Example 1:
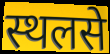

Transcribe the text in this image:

स्थलसे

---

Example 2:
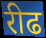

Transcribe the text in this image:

रीढ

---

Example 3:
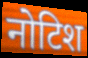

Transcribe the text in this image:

नोटिश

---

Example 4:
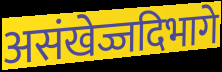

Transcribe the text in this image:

असंखेज्जदिभागे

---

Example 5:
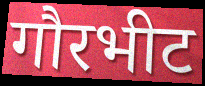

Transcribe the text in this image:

गौरभीट